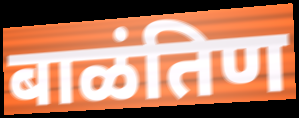
बाळंतिण